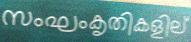
സംഘംകൃതികളില്